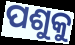
ପଶୁକୁ